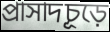
প্রাসাদচূড়ে